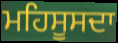
ਮਹਿਸੂਸਦਾ